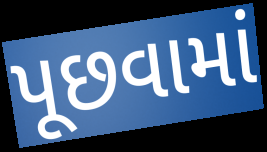
પૂછવામાં